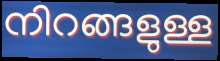
നിറങ്ങളുള്ള